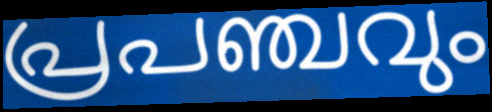
പ്രപഞ്ചവും